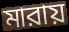
মারায়